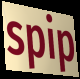
spip